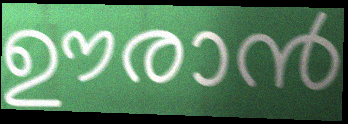
ഊരാൻ